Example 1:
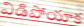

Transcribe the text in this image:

విడిపోయాక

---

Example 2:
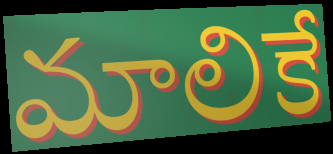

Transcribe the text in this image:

మాలికే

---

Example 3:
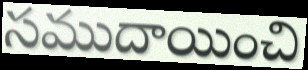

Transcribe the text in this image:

సముదాయించి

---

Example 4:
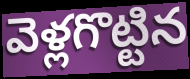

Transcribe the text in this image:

వెళ్లగొట్టిన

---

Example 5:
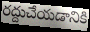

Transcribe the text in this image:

రద్దుచేయడానికి